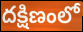
దక్షిణంలో